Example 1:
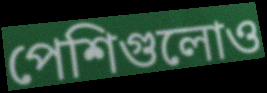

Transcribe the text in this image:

পেশিগুলোও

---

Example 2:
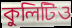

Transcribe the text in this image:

কুলিটিও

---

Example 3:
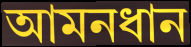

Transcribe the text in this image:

আমনধান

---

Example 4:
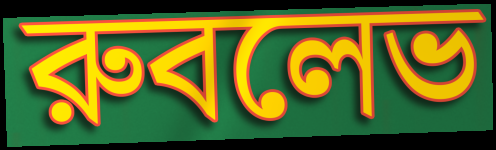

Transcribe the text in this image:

রুবলেভ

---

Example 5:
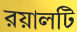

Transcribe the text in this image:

রয়ালটি